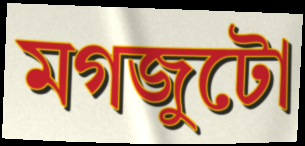
মগজুটো